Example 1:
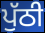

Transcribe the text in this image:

ਪੁੱਠੀ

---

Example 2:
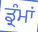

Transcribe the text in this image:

ਡ੍ਰੰਮਾਂ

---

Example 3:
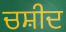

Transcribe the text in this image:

ਚਸ਼ੀਦ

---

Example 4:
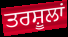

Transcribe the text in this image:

ਤਰਸ਼ੂਲਾਂ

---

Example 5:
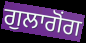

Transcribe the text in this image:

ਗੁਲਾਗੋਂਗ